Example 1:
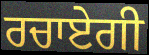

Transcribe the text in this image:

ਰਚਾਏਗੀ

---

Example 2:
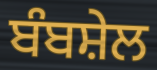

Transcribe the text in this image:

ਬੰਬਸ਼ੇਲ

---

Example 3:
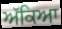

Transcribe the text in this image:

ਅੱਕਿਆ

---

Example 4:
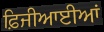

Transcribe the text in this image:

ਫ਼ਿਜੀਆਈਆਂ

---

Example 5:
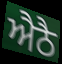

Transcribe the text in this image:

ਐਠੈ